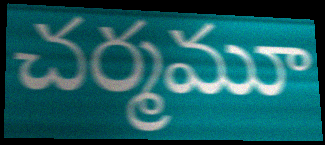
చర్మమూ